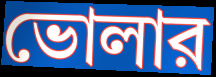
ভোলার